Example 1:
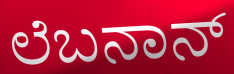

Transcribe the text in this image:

ಲೆಬನಾನ್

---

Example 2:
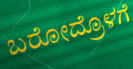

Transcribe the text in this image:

ಬರೋದ್ರೊಳಗೆ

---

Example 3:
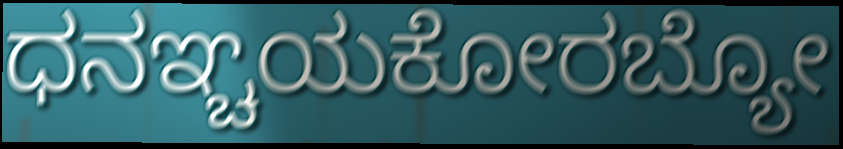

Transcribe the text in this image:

ಧನಞ್ಚಯಕೋರಬ್ಯೋ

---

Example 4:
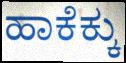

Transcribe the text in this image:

ಹಾಕೆಕ್ಕು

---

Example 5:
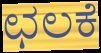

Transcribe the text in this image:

ಛಲಕೆ